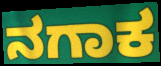
ನಗಾಕ